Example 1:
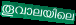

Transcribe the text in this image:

തൂവാലയിലെ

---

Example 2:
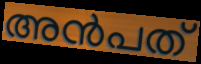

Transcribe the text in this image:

അൻപത്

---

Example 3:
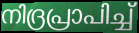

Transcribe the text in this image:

നിദ്രപ്രാപിച്ച്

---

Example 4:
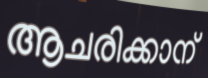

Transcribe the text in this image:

ആചരിക്കാന്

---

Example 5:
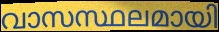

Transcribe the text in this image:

വാസസ്ഥലമായി